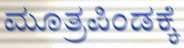
ಮೂತ್ರಪಿಂಡಕ್ಕೆ